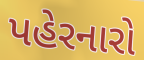
પહેરનારો